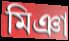
মিঞা